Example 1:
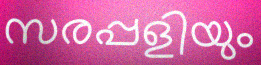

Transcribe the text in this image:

സരപ്പളിയും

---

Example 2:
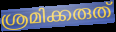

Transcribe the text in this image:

ശ്രമിക്കരുത്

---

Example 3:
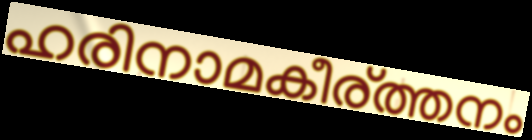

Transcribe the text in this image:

ഹരിനാമകീര്ത്തനം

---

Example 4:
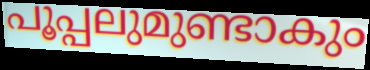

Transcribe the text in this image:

പൂപ്പലുമുണ്ടാകും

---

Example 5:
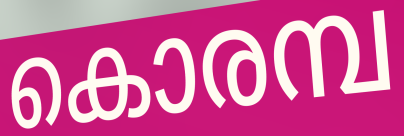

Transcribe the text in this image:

കൊരമ്പ